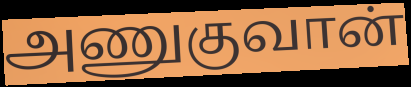
அணுகுவான்